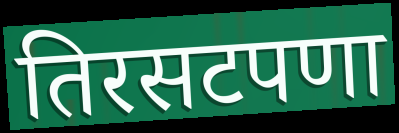
तिरसटपणा